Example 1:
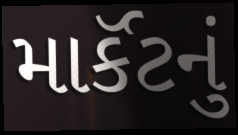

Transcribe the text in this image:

માર્કૅટનું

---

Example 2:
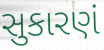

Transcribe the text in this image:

સુકારણં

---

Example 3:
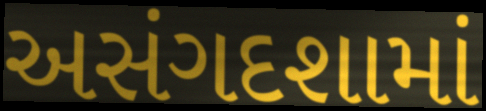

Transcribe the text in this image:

અસંગદશામાં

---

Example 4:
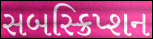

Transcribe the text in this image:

સબસ્ક્રિપ્શન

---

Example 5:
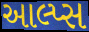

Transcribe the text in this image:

આલ્પ્સ